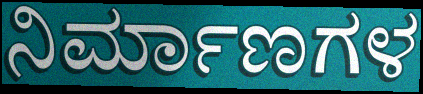
ನಿರ್ಮಾಣಗಳ